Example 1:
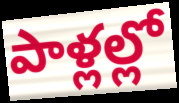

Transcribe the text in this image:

పాళ్లల్లో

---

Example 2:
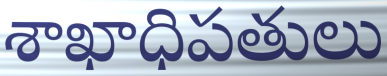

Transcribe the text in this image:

శాఖాధిపతులు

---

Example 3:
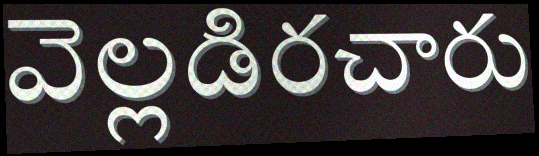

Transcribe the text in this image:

వెల్లడిరచారు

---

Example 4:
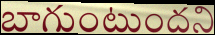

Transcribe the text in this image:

బాగుంటుందని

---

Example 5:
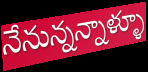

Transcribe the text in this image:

నేనున్నన్నాళ్ళూ